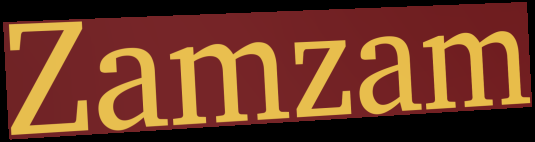
Zamzam